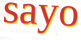
sayo